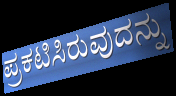
ಪ್ರಕಟಿಸಿರುವುದನ್ನು